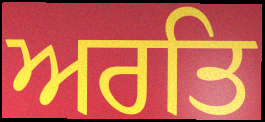
ਅਰਤਿ